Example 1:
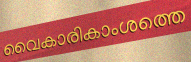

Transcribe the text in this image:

വൈകാരികാംശത്തെ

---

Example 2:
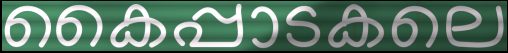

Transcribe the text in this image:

കൈപ്പാടകലെ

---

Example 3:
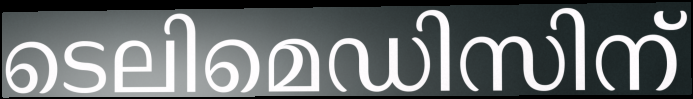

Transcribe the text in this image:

ടെലിമെഡിസിന്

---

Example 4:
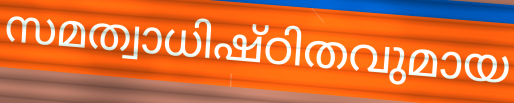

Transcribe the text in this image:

സമത്വാധിഷ്ഠിതവുമായ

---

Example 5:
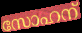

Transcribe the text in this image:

സോഹന്